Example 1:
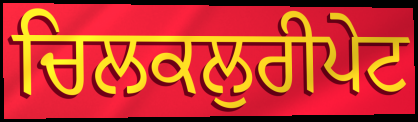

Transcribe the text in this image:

ਚਿਲਕਲੁਰੀਪੇਟ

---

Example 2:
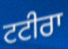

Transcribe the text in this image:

ਟਟੀਰਾ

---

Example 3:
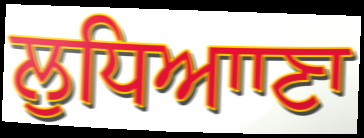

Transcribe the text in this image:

ਲੁਧਿਆਾਣਾ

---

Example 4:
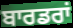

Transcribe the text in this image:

ਬਾਰਡਰਾਂ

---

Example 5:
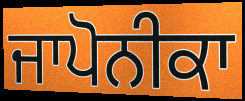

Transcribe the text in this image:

ਜਾਪੋਨੀਕਾ